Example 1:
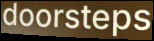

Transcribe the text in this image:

doorsteps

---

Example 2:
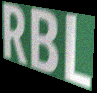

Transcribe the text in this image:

RBL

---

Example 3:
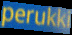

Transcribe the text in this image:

perukki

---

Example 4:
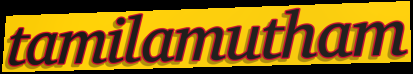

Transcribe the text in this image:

tamilamutham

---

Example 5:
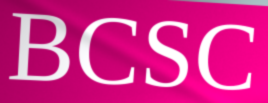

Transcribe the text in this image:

BCSC